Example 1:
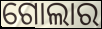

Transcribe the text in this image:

ଗୋଲାର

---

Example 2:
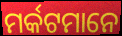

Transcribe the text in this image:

ମର୍କଟମାନେ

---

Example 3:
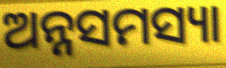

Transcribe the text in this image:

ଅନ୍ନସମସ୍ୟା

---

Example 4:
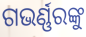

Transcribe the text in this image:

ଗଭର୍ଣ୍ଣରଙ୍କୁ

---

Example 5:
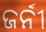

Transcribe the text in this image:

ଜର୍ନୀ